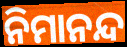
ନିମାନନ୍ଦ